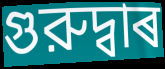
গুৰুদ্বাৰ